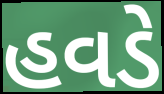
હવડે